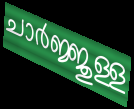
ചാർജ്ജുള്ള